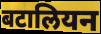
बटालियन